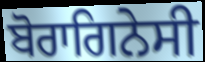
ਬੋਰਾਗਿਨੇਸੀ